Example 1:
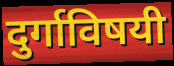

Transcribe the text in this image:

दुर्गाविषयी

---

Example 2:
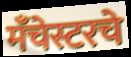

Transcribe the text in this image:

मँचेस्टरचे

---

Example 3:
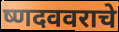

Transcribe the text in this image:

ष्णदववराचे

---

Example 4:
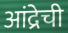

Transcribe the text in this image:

आंद्रेची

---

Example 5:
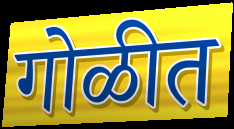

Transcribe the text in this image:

गोळीत